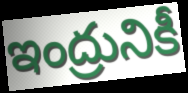
ఇంద్రునికీ